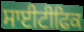
ਸਾਈਟੀਫਿਕ